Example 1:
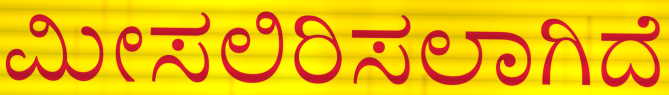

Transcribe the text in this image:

ಮೀಸಲಿರಿಸಲಾಗಿದೆ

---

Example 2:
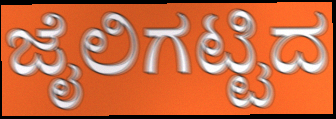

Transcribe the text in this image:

ಜೈಲಿಗಟ್ಟಿದ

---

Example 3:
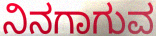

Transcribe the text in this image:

ನಿನಗಾಗುವ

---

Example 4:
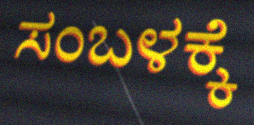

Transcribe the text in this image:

ಸಂಬಳಕ್ಕೆ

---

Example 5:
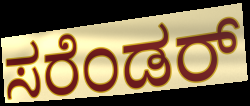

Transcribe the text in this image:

ಸರೆಂಡರ್